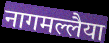
नागमल्लैया